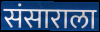
संसाराला